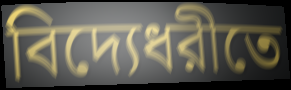
বিদ্যেধরীতে